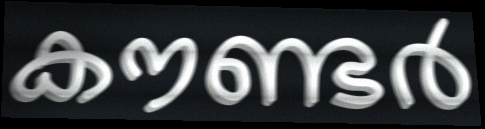
കൗണ്ടർ